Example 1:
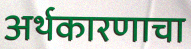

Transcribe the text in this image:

अर्थकारणाचा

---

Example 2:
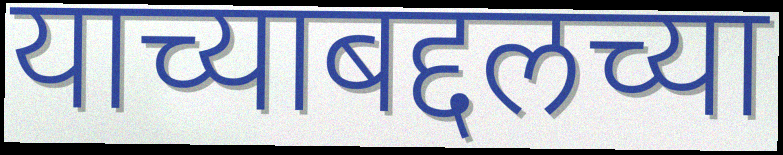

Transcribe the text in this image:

याच्याबद्दलच्या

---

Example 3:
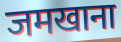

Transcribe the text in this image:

जमखाना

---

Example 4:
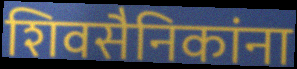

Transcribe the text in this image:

शिवसैनिकांना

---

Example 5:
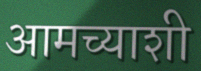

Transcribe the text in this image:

आमच्याशी